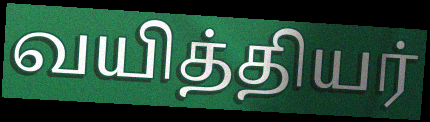
வயித்தியர்